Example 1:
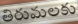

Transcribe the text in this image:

తిరుమలకు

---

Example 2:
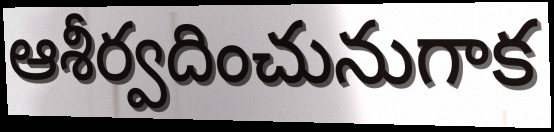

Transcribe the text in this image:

ఆశీర్వదించునుగాక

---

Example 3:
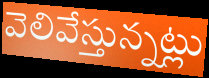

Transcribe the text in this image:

వెలివేస్తున్నట్లు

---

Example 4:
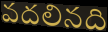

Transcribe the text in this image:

వదలినది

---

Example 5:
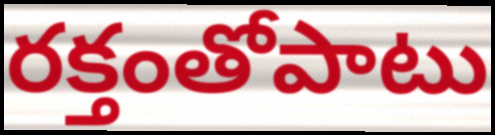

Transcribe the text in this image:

రక్తంతోపాటు